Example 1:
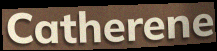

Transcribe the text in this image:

Catherene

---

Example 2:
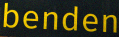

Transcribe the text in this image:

benden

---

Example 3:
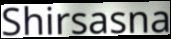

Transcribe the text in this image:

Shirsasna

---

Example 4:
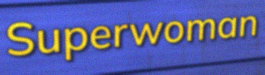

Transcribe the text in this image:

Superwoman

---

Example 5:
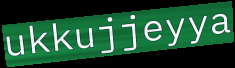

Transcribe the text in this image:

ukkujjeyya